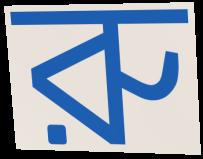
ৰু